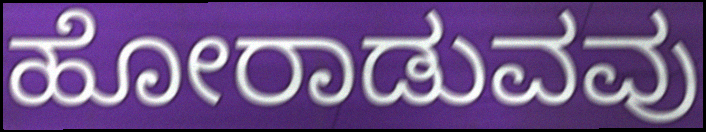
ಹೋರಾಡುವವು